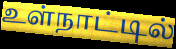
உள்நாட்டில்